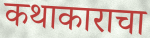
कथाकाराचा